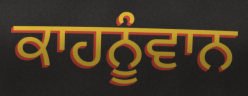
ਕਾਹਨੂੰਵਾਨ